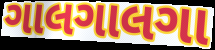
ગાલગાલગા